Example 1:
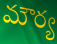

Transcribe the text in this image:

మౌర్య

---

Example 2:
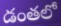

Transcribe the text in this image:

డంతలో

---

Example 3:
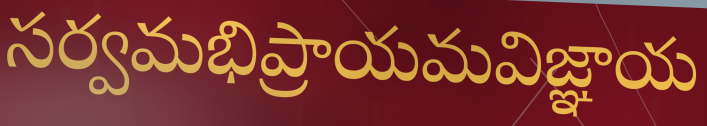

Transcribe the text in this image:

సర్వమభిప్రాయమవిజ్ఞాయ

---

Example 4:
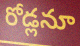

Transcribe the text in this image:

రోడ్లనూ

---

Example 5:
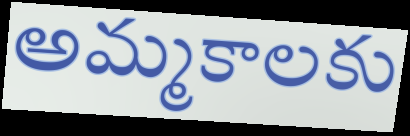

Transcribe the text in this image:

అమ్మకాలకు